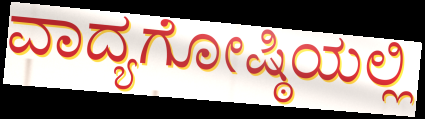
ವಾದ್ಯಗೋಷ್ಠಿಯಲ್ಲಿ